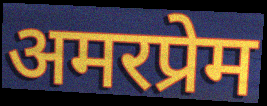
अमरप्रेम